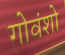
गोवंशो